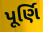
પૂર્ણિ